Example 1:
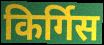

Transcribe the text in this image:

किर्गिस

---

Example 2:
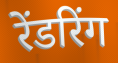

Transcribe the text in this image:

रेंडरिंग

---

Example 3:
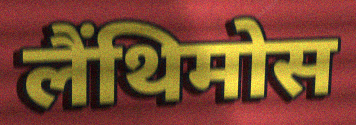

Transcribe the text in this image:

लैंथिमोस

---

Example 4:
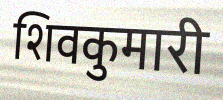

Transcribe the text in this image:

शिवकुमारी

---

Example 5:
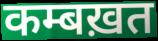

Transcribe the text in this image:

कम्बख़त